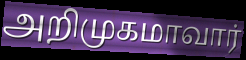
அறிமுகமாவார்